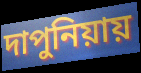
দাপুনিয়ায়